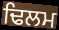
ਢਿਲਮ